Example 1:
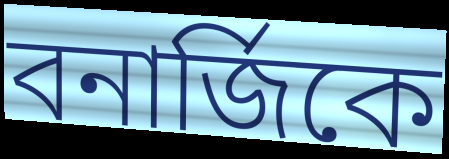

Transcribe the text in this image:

বনার্জিকে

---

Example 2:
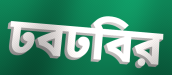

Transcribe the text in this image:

ঢবঢবির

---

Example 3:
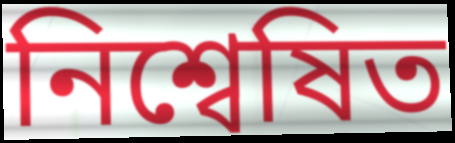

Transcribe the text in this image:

নিশ্বেষিত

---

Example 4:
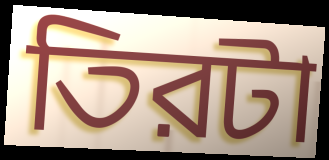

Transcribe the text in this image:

তিরটা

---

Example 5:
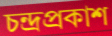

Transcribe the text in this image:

চন্দ্রপ্রকাশ